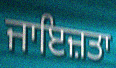
ਜਾਇਜ਼ਤਾ